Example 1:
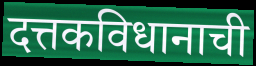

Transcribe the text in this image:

दत्तकविधानाची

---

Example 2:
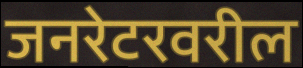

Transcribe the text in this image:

जनरेटरवरील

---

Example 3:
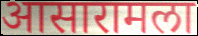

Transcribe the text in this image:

आसारामला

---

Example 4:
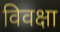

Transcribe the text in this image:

विवक्षा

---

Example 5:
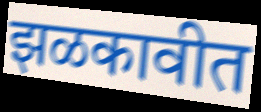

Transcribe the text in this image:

झळकावीत